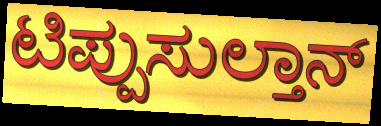
ಟಿಪ್ಪುಸುಲ್ತಾನ್